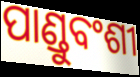
ପାଣ୍ଡୁବଂଶୀ